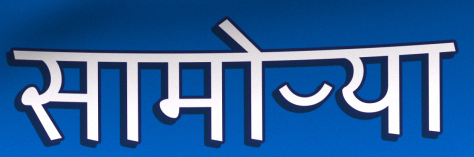
सामोऱ्या